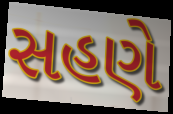
સહણે